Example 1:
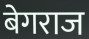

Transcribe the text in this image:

बेगराज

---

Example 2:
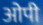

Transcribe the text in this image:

ओपी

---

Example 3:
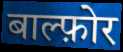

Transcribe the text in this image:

बाल्फ़ोर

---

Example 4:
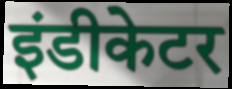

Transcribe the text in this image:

इंडीकेटर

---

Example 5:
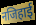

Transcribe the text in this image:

नजिहाई